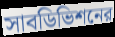
সাবডিভিশনের